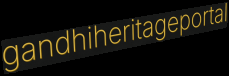
gandhiheritageportal